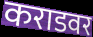
कराडवर